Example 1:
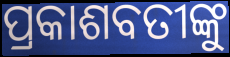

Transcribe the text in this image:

ପ୍ରକାଶବତୀଙ୍କୁ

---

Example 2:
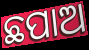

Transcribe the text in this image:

ଛପାଅ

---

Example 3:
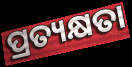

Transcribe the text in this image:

ପ୍ରତ୍ୟକ୍ଷତା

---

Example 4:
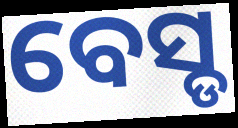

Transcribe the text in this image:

ବେସ୍ଡ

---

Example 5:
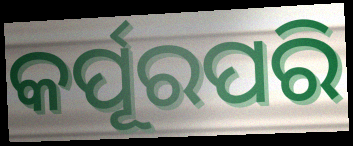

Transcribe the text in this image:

କର୍ପୂରପରି